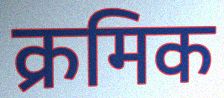
क्रमिक